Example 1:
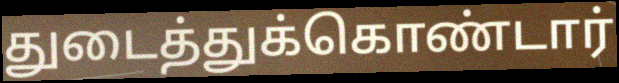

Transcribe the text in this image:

துடைத்துக்கொண்டார்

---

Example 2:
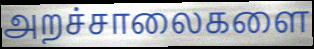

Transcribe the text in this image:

அறச்சாலைகளை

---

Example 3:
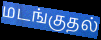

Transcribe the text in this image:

மடங்குதல்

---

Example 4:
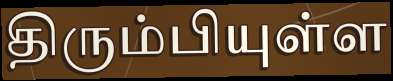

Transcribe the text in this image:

திரும்பியுள்ள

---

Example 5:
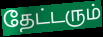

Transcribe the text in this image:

தேட்டரும்